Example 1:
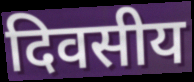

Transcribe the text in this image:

दिवसीय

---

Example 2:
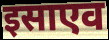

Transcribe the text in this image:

इसाएव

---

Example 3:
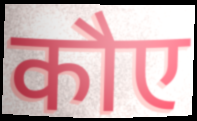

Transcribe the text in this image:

कौए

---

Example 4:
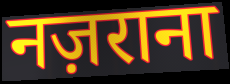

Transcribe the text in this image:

नज़राना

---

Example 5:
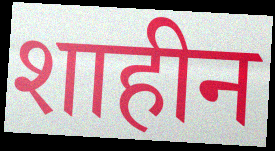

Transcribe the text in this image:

शाहीन